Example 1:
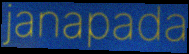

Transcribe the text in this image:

janapada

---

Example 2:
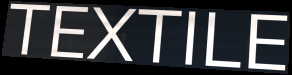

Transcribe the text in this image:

TEXTILE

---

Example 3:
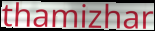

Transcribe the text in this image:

thamizhar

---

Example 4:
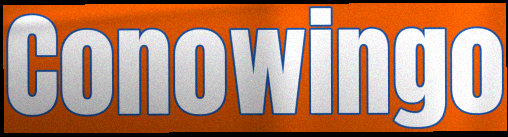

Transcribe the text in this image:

Conowingo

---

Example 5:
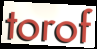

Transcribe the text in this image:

torof